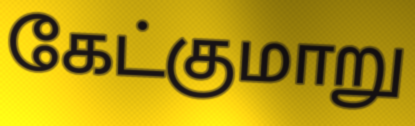
கேட்குமாறு